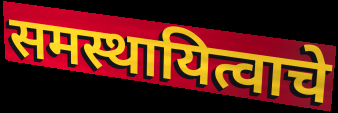
समस्थायित्वाचे